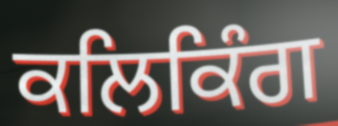
ਕਲਿਕਿੰਗ